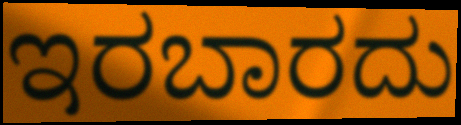
ಇರಬಾರದು